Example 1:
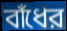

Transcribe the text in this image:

বাঁধের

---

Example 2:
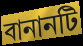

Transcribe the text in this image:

বানানটি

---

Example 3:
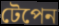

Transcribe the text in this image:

টেপেন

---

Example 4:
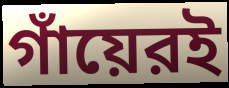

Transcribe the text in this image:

গাঁয়েরই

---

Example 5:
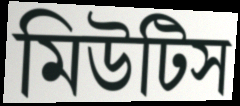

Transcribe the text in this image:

মিউটিস